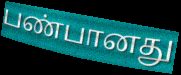
பண்பானது